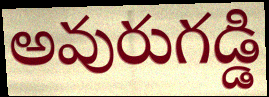
అవురుగడ్డి